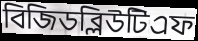
বিজিডব্লিউটিএফ